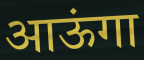
आऊंगा